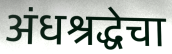
अंधश्रद्धेचा